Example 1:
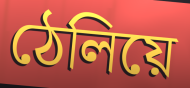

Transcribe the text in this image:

ঠেলিয়ে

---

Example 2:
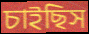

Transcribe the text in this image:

চাইছিস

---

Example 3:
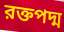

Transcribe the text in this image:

রক্তপদ্ম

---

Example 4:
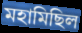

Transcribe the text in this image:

মহামিছিল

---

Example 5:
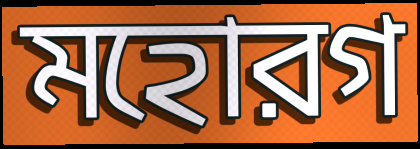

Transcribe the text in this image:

মহোরগ